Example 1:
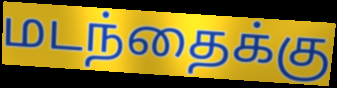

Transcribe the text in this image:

மடந்தைக்கு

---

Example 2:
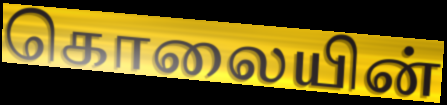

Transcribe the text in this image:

கொலையின்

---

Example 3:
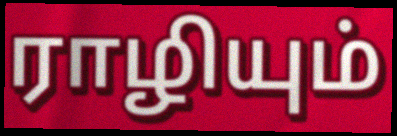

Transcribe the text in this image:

ராழியும்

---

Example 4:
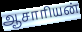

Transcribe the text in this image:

ஆசாரியன்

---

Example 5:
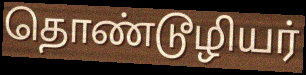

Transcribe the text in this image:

தொண்டூழியர்